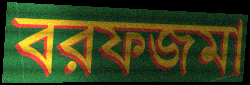
বরফজমা